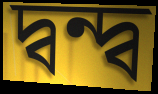
দ্বন্দ্ব